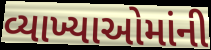
વ્યાખ્યાઓમાંની